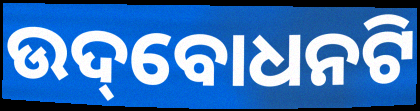
ଉଦ୍‌ବୋଧନଟି